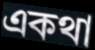
একথা